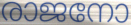
രാജനോ